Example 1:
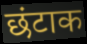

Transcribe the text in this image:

छंटाक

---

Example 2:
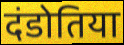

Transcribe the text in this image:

दंडोतिया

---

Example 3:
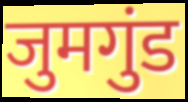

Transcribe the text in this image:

जुमगुंड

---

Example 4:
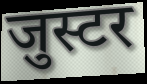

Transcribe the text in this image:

जुस्टर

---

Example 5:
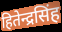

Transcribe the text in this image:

हितेन्द्रसिंह